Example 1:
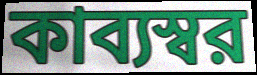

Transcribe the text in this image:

কাব্যস্বর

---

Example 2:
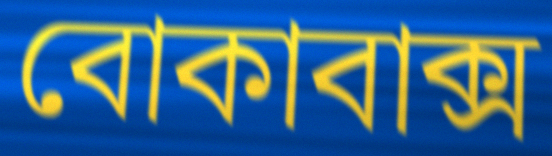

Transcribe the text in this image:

বোকাবাক্স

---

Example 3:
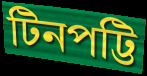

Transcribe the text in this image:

টিনপট্টি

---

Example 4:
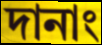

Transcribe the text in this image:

দানাং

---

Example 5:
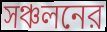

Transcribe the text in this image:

সঞ্চলনের